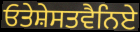
ਓਤੇਸ਼ੇਸਤਵੈਨਿਏ